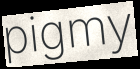
pigmy